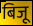
बिजू